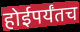
होईपर्यंतच